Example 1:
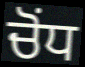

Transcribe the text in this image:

ਚੋਂਧ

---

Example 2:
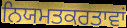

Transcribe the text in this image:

ਨਿਯਮਤਕਰਤਾਵਾਂ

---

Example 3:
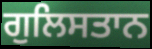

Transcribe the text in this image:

ਗੁਲਿਸਤਾਨ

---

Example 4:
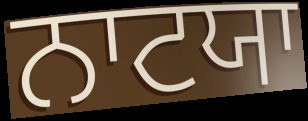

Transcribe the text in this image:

ਨਾਟਯਾ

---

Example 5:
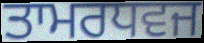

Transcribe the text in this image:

ਤਾਮਰਧਵਜ